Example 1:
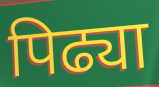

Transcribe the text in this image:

पिढ्या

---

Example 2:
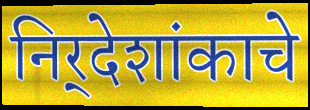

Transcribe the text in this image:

निर्देशांकाचे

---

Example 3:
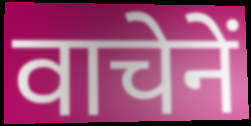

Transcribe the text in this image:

वाचेनें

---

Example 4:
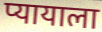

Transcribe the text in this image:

प्यायाला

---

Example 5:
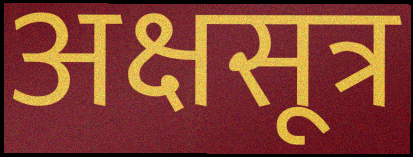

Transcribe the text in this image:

अक्षसूत्र